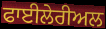
ਫਾਈਲੇਰੀਅਲ